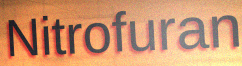
Nitrofuran